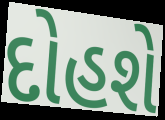
દોહશે